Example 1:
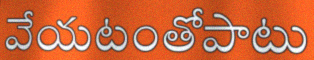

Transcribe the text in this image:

వేయటంతోపాటు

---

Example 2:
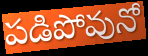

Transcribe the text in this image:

పడిపోవునో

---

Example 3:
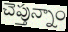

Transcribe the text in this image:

చెప్తున్నాం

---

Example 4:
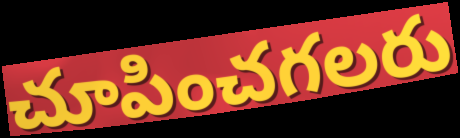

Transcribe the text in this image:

చూపించగలరు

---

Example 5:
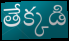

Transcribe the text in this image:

తేక్కడి